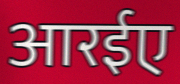
आरईए